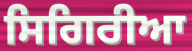
ਸਿਗਿਰੀਆ